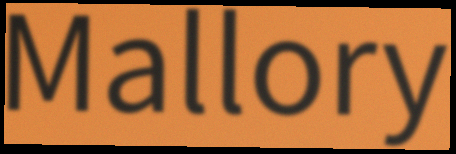
Mallory